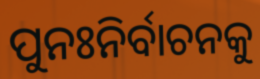
ପୁନଃନିର୍ବାଚନକୁ